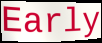
Early